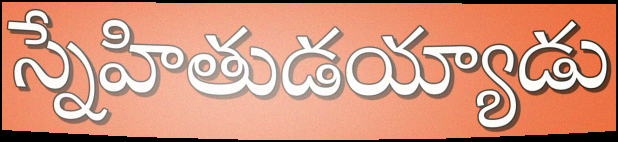
స్నేహితుడయ్యాడు